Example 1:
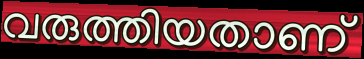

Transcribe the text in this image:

വരുത്തിയതാണ്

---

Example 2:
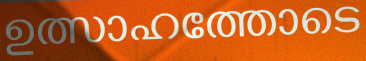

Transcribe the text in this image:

ഉത്സാഹത്തോടെ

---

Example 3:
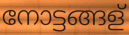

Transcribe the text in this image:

നോട്ടങ്ങള്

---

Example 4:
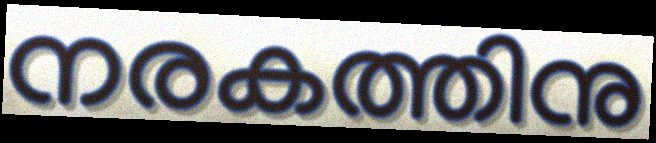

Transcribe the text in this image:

നരകത്തിനു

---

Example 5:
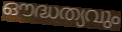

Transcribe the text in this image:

ഔദ്ധത്യവും